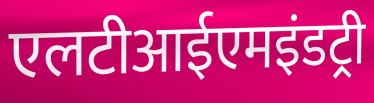
एलटीआईएमइंडट्री